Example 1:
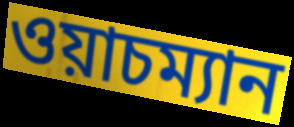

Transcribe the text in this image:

ওয়াচম্যান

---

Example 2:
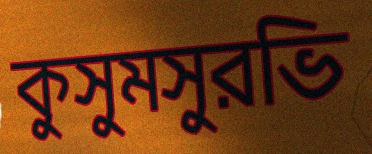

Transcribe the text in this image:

কুসুমসুরভি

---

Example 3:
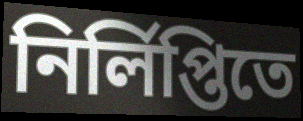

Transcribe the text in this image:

নির্লিপ্তিতে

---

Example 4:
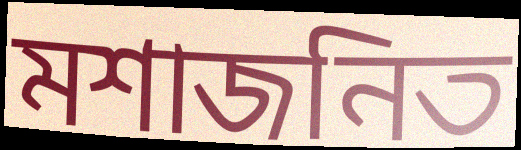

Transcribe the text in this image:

মশাজনিত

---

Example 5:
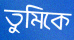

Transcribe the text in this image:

তুমিকে